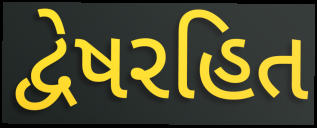
દ્વેષરહિત